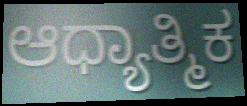
ಆಧ್ಯಾತ್ಮಿಕ